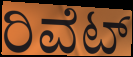
ರಿವೆಟ್